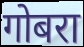
गोबरा